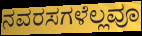
ನವರಸಗಳೆಲ್ಲವೂ